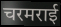
चरमराई